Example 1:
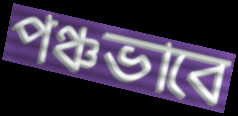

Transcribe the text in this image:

পঞ্চভাবে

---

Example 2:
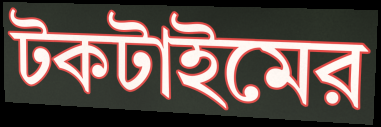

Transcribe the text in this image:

টকটাইমের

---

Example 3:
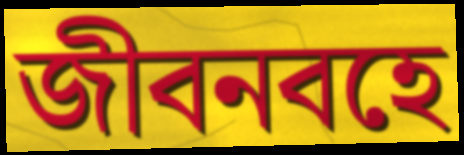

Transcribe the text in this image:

জীবনবহে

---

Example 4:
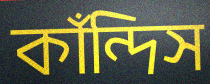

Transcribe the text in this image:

কাঁন্দিস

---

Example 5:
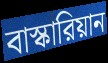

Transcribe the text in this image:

বাস্কারিয়ান